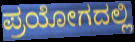
ಪ್ರಯೋಗದಲ್ಲಿ